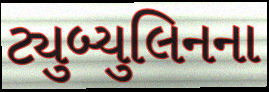
ટ્યુબ્યુલિનના